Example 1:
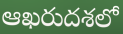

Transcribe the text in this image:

ఆఖరుదశలో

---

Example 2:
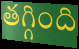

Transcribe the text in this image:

తగ్గింది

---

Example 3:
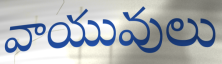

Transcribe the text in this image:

వాయువులు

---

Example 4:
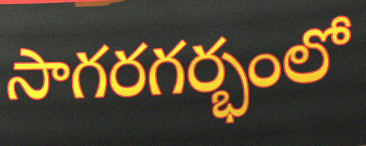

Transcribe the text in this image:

సాగరగర్భంలో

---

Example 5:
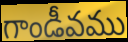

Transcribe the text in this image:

గాండీవము